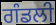
ਗੰਡਲੀ